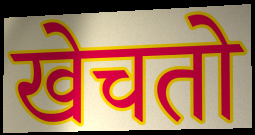
खेचतो